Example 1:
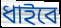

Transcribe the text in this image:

ধাইবে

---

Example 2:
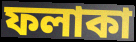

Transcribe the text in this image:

ফলাকা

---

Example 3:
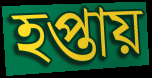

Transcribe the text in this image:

হপ্তায়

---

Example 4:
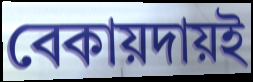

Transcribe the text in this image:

বেকায়দায়ই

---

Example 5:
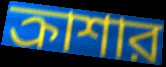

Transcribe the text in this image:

ক্রাশার